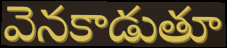
వెనకాడుతూ